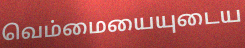
வெம்மையையுடைய